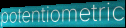
potentiometric